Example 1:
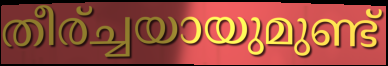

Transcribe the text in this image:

തീര്ച്ചയായുമുണ്ട്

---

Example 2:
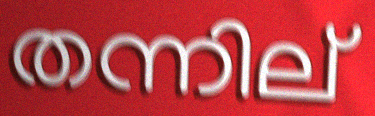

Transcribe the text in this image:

തന്നില്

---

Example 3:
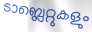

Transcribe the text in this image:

ടാബ്ലെറ്റുകളും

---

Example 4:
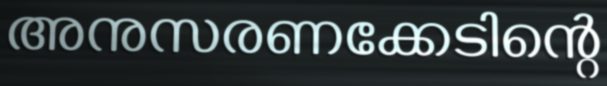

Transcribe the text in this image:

അനുസരണക്കേടിന്റെ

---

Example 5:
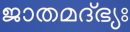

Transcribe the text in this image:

ജാതമദ്ഭ്യഃ